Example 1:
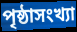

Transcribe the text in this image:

পৃষ্ঠাসংখ্যা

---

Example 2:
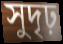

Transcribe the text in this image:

সুদৃঢ়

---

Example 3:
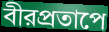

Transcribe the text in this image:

বীরপ্রতাপে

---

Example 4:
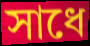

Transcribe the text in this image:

সাধে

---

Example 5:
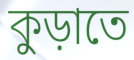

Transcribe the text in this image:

কুড়াতে